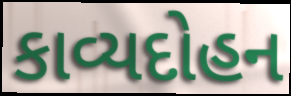
કાવ્યદોહન